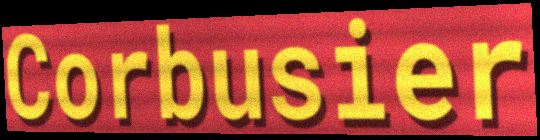
Corbusier